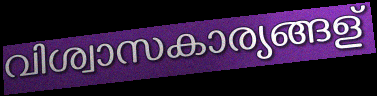
വിശ്വാസകാര്യങ്ങള്